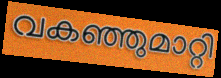
വകഞ്ഞുമാറ്റി